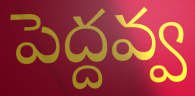
పెద్దవ్వ